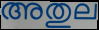
അതുല